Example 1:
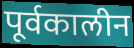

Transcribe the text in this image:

पूर्वकालीन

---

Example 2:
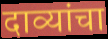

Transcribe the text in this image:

दाव्यांचा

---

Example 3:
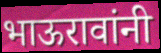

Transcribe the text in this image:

भाऊरावांनी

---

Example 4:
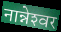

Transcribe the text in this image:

नान्नेश्वर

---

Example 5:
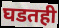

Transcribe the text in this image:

घडतही